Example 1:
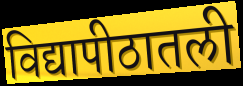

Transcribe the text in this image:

विद्यापीठातली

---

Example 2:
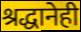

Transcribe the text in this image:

श्रद्धानेही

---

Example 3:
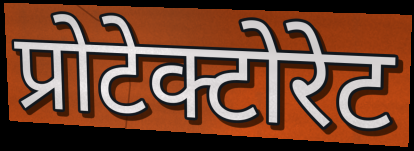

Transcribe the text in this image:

प्रोटेक्टोरेट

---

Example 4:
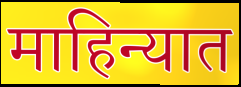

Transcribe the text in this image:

माहिन्यात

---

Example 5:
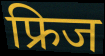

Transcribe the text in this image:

फ्रिज